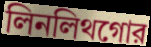
লিনলিথগোর